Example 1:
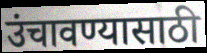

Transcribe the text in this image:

उंचावण्यासाठी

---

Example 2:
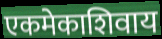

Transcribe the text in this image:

एकमेकाशिवाय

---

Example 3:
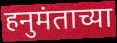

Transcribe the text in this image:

हनुमंताच्या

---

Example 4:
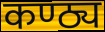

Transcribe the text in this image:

कण्ठ्य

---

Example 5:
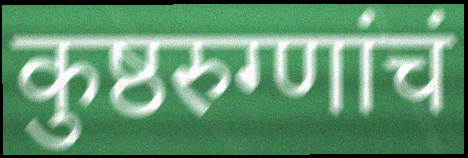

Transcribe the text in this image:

कुष्ठरुग्णांचं